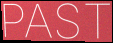
PAST